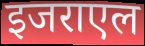
इजराएल